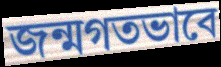
জন্মগতভাবে